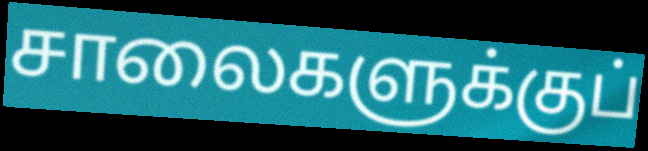
சாலைகளுக்குப்